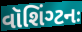
વૉશિંગ્ટનઃ